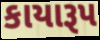
કાયારૂપ